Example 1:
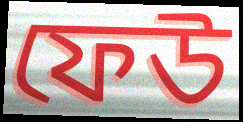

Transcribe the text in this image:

ফেউ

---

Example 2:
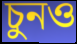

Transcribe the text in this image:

চুনও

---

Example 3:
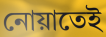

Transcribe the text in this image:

নোয়াতেই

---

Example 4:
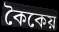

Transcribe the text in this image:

কৈকেয়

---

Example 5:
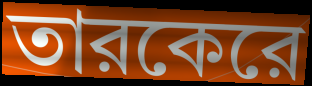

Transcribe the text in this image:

তারকেরে